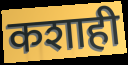
कशाही